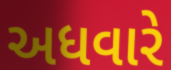
અધવારે